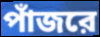
পাঁজরে